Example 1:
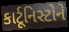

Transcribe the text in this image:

કાર્ટૂનિસ્ટોને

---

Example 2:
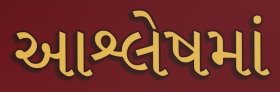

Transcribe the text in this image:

આશ્લેષમાં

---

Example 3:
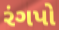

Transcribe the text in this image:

રંગપો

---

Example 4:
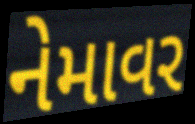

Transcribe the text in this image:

નેમાવર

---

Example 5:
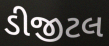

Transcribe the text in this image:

ડીજીટલ